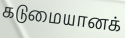
கடுமையானக்